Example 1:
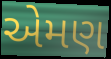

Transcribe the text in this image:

એમણ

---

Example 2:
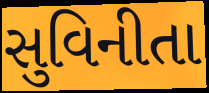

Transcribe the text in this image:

સુવિનીતા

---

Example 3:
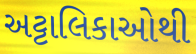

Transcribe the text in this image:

અટ્ટાલિકાઓથી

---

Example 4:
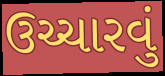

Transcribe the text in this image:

ઉચ્ચારવું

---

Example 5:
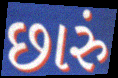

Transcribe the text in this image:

છારું